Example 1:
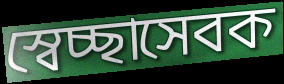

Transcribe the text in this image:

স্বেচ্ছাসেবক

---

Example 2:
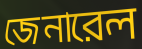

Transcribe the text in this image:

জেনারেল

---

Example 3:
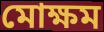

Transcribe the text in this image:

মোক্ষম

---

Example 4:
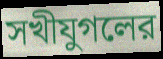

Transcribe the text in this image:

সখীযুগলের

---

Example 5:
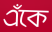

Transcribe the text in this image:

এঁকে